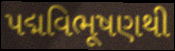
પદ્મવિભૂષણથી